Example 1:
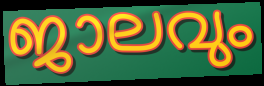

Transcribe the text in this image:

ജാലവും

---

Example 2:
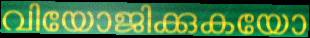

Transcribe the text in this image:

വിയോജിക്കുകയോ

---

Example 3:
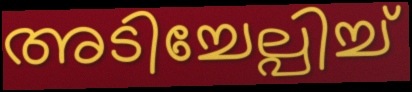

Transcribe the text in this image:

അടിച്ചേല്പിച്ച്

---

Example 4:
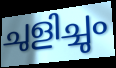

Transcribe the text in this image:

ചുളിച്ചും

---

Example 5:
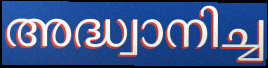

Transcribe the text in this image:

അദ്ധ്വാനിച്ച